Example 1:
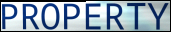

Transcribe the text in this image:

PROPERTY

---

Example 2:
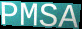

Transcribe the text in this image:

PMSA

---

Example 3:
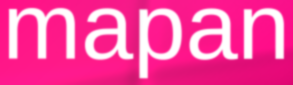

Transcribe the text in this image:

mapan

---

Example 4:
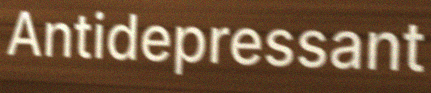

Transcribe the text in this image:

Antidepressant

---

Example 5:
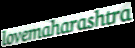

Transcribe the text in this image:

lovemaharashtra